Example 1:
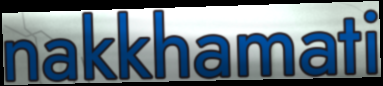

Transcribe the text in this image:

nakkhamati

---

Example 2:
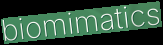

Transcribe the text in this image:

biomimatics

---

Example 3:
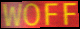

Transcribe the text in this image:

WOFF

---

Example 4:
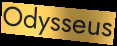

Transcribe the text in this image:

Odysseus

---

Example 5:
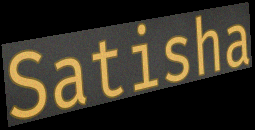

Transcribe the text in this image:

Satisha